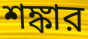
শঙ্কার